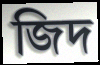
জিদ